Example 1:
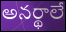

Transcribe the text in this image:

అనర్థాలే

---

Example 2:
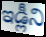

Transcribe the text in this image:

ఇడ్లీని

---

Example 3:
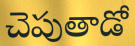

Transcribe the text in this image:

చెపుతాడో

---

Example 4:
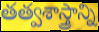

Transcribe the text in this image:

తత్వశాస్త్రాన్ని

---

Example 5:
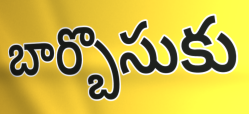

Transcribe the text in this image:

బార్బొసుకు